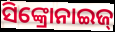
ସିଙ୍କ୍ରୋନାଇଜ୍